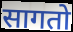
सागतो